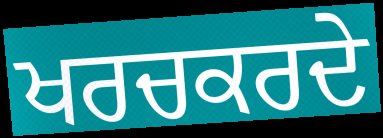
ਖਰਚਕਰਦੇ